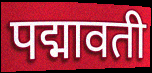
पद्मावती